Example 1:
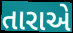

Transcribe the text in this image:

તારાએ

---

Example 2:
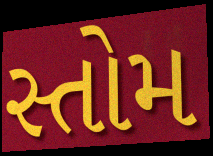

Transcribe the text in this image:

સ્તોમ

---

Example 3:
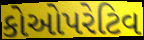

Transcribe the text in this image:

કોઓપરેટિવ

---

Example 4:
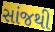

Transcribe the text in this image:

સાંજથી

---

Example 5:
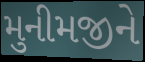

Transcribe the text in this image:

મુનીમજીને